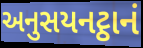
અનુસયનટ્ઠાનં